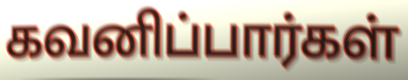
கவனிப்பார்கள்